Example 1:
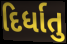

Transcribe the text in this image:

દિર્ધાતુ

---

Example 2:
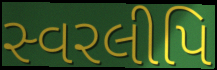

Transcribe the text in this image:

સ્વરલીપિ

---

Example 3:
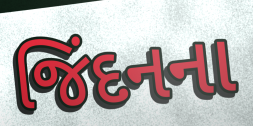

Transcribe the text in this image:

જિંદનના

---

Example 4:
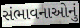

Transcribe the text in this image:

સંભાવનાઓનું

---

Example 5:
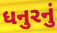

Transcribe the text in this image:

ધનુરનું